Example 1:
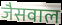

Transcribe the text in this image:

जैसवाल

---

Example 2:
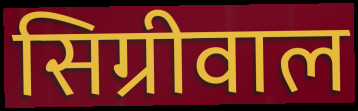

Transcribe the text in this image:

सिग्रीवाल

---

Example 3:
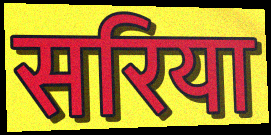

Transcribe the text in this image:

सरिया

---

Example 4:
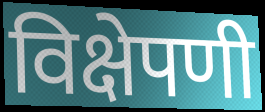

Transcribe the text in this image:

विक्षेपणी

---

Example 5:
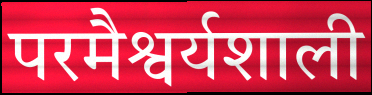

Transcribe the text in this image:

परमैश्वर्यशाली